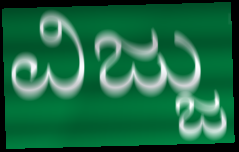
ವಿಜ್ಜು